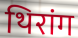
थिरांग